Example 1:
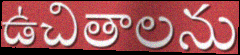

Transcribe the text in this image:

ఉచితాలను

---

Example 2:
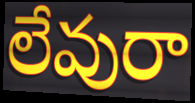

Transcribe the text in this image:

లేవురా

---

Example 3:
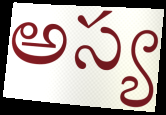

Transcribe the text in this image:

అస్య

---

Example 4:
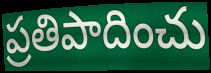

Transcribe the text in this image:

ప్రతిపాదించు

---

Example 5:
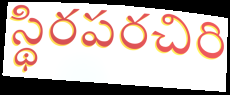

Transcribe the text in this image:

స్థిరపరచిరి